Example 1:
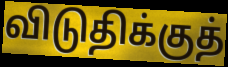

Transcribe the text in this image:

விடுதிக்குத்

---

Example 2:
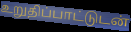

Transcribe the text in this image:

உறுதிப்பாட்டுடன்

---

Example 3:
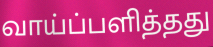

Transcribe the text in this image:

வாய்ப்பளித்தது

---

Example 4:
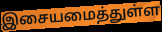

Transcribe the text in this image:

இசையமைத்துள்ள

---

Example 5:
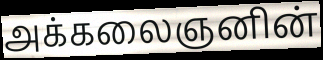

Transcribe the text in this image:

அக்கலைஞனின்